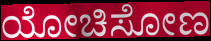
ಯೋಚಿಸೋಣ